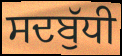
ਸਦਬੁੱਧੀ